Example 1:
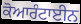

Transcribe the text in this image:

ਕੋਆਰੰਟਾਈਨ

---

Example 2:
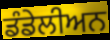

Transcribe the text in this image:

ਡੰਡੇਲੀਅਨ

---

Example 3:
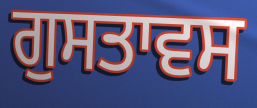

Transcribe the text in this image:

ਗੁਸਤਾਵਸ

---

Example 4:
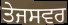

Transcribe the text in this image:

ਤੇਜਸਵਰ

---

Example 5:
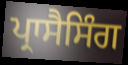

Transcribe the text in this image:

ਪ੍ਰਾਸੈਸਿੰਗ